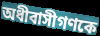
অধীবাসীগণকে